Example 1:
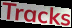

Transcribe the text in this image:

Tracks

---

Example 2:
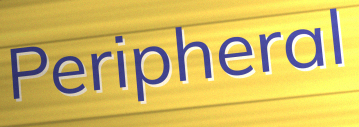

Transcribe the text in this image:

Peripheral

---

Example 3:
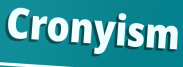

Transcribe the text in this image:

Cronyism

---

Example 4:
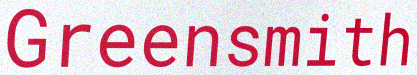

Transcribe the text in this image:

Greensmith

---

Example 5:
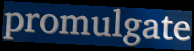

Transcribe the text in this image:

promulgate